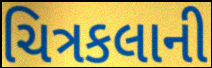
ચિત્રકલાની